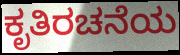
ಕೃತಿರಚನೆಯ